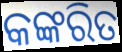
କଙ୍କରିତ